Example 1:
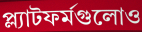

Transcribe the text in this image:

প্ল্যাটফর্মগুলোও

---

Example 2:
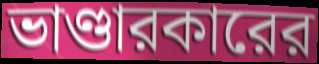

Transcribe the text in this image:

ভাণ্ডারকারের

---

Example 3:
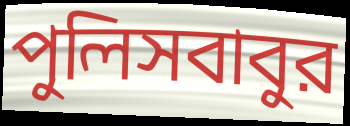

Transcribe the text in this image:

পুলিসবাবুর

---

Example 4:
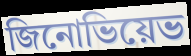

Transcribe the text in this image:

জিনোভিয়েভ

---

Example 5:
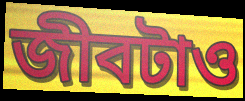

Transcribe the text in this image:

জীবটাও